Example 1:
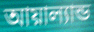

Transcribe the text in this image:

আয়াল্যান্ড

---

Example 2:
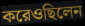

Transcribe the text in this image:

করেওছিলেন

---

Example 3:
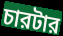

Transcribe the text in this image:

চারটার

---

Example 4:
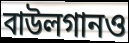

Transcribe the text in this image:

বাউলগানও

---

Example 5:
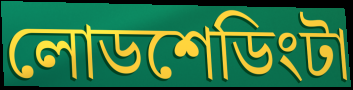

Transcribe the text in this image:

লোডশেডিংটা